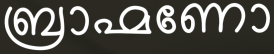
ബ്രാഹ്മണോ